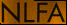
NLFA